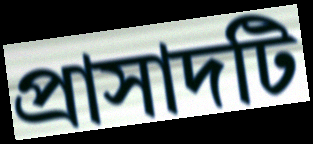
প্রাসাদটি